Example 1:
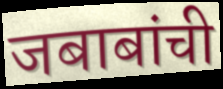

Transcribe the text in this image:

जबाबांची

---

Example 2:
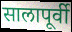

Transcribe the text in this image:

सालापूर्वी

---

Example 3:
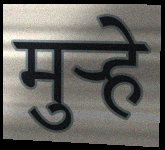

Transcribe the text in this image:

मुऱ्हे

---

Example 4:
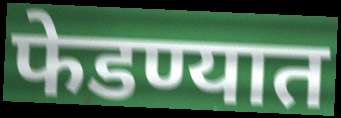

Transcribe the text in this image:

फेडण्यात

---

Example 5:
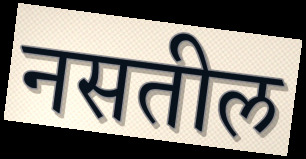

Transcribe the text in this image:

नसतील